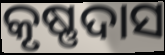
କୃଷ୍ଣଦାସ